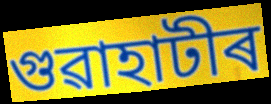
গুৱাহাটীৰ